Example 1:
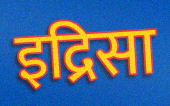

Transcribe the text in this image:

इद्रिसा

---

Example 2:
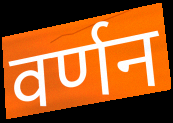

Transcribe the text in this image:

वर्णन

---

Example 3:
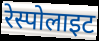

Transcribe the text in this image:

रेस्पोलाइट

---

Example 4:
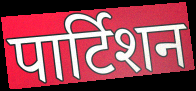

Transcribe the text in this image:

पार्टिशन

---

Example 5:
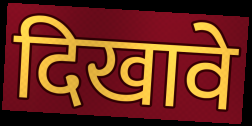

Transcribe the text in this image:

दिखावे